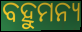
ବହୁମନ୍ୟ